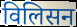
विलिसन